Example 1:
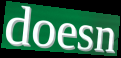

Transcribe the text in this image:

doesn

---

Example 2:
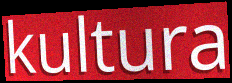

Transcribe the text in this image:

kultura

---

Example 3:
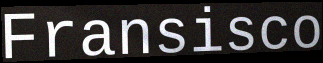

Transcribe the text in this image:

Fransisco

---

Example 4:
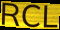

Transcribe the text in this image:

RCL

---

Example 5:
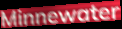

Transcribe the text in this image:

Minnewater